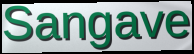
Sangave